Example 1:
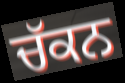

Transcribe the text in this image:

ਚੱਕਨ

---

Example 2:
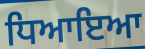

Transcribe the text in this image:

ਧਿਆਇਆ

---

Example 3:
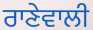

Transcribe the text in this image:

ਰਾਣੇਵਾਲੀ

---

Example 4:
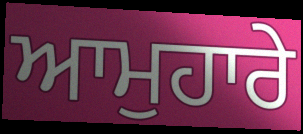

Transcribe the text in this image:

ਆਮੁਹਾਰੇ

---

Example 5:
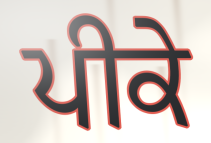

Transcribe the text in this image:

ਪੀਕੇ